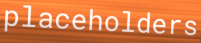
placeholders